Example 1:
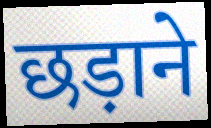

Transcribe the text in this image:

छड़ाने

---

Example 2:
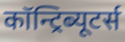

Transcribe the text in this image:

कॉन्ट्रिब्यूटर्स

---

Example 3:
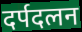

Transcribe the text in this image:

दर्पदलन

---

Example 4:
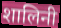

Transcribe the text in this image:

शालिनी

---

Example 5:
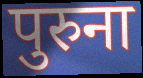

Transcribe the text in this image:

पुरुना